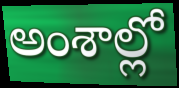
అంశాల్లో